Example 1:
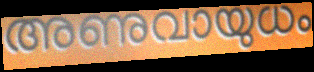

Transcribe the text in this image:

അണുവായുധം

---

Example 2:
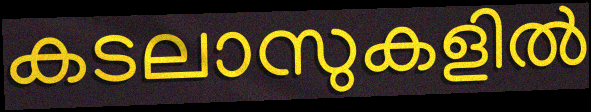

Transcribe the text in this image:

കടലാസുകളിൽ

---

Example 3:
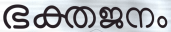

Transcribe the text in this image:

ഭക്തജനം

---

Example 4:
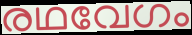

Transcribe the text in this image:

രഥവേഗം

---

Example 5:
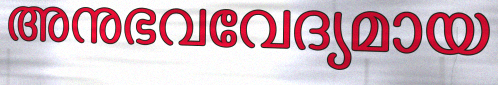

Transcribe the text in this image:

അനുഭവവേദ്യമായ